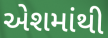
એશમાંથી